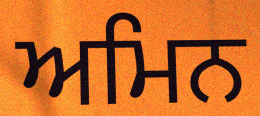
ਅਮਿਨ